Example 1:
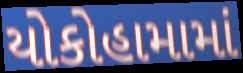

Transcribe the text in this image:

યોકોહામામાં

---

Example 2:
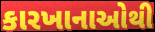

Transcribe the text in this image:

કારખાનાઓથી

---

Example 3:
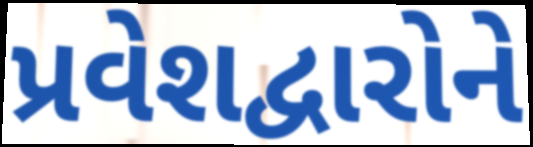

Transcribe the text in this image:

પ્રવેશદ્વારોને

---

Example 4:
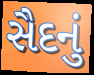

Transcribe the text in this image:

સૈદનું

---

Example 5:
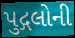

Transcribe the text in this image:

પુદ્ગલોની